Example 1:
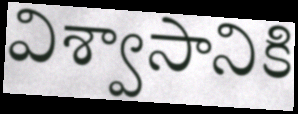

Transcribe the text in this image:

విశ్వాసానికి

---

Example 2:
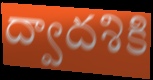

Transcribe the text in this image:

ద్వాదశికి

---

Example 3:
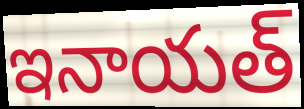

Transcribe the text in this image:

ఇనాయత్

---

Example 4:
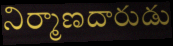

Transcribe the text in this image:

నిర్మాణదారుడు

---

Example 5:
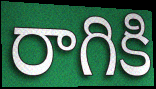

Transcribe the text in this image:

రాగికి